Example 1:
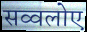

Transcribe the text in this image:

सव्वलोए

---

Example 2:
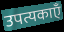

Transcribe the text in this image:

उपत्यकाएँ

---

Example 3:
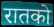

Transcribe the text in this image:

रातको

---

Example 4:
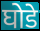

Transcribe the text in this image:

घोडे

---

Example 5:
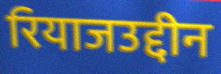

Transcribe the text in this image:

रियाजउद्दीन